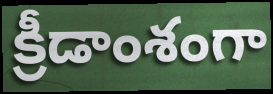
క్రీడాంశంగా